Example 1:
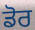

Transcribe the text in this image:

ਡੋਰ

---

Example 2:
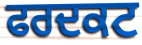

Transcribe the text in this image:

ਫਰਦਕਟ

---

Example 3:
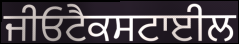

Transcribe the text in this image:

ਜੀਓਟੈਕਸਟਾਈਲ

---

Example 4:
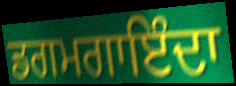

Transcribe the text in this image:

ਡਗਮਗਾਇੰਦਾ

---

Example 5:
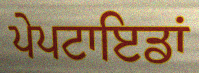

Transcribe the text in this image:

ਪੇਪਟਾਇਡਾਂ